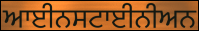
ਆਈਨਸਟਾਈਨੀਅਨ